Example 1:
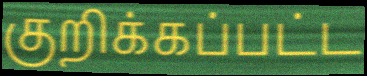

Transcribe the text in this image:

குறிக்கப்பட்ட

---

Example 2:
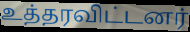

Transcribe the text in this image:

உத்தரவிட்டனர்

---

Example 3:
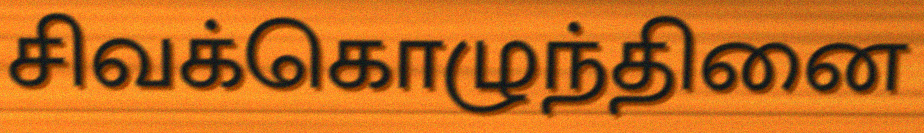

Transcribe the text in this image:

சிவக்கொழுந்தினை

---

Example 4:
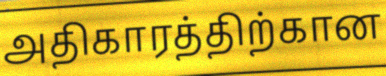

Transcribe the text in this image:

அதிகாரத்திற்கான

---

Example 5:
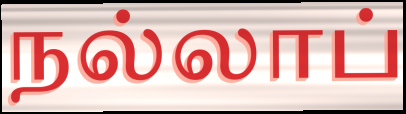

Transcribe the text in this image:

நல்லாப்